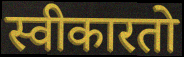
स्वीकारतो